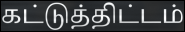
கட்டுத்திட்டம்